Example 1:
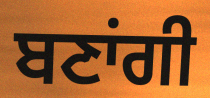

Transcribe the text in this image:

ਬਣਾਂਗੀ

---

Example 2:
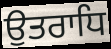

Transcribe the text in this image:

ਉਤਰਾਧਿ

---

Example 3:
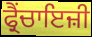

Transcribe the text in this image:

ਫ੍ਰੈਂਚਾਇਜ਼ੀ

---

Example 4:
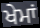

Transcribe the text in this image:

ਖੇਮਾਂ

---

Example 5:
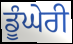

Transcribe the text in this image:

ਡੂੰਘੇਰੀ